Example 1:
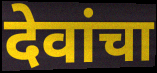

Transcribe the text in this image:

देवांचा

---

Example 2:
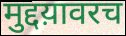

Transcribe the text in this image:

मुद्दय़ावरच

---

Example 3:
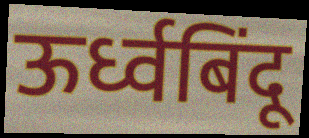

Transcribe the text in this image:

ऊर्ध्वबिंदू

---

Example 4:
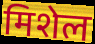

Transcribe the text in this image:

मिशेल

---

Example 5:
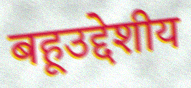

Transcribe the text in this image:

बहूउद्देशीय